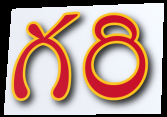
గరి